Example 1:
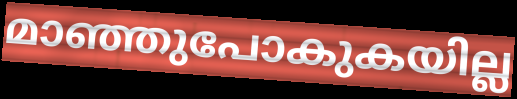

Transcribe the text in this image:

മാഞ്ഞുപോകുകയില്ല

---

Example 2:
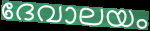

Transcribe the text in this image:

ദേവാലയം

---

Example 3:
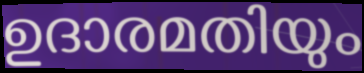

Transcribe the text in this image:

ഉദാരമതിയും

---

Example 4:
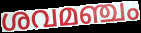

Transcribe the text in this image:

ശവമഞ്ചം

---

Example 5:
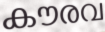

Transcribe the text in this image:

കൗരവ